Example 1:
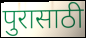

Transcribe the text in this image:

पुरासाठी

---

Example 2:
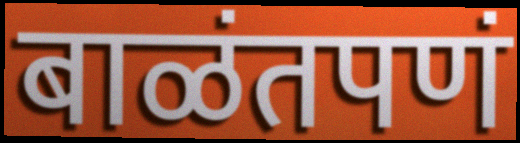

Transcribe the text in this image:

बाळंतपणं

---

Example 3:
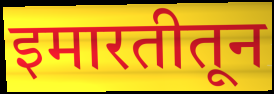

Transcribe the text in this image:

इमारतीतून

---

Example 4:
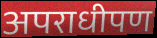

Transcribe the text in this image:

अपराधीपण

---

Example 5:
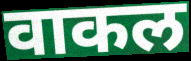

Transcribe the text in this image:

वाकल